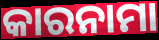
କାରନାମା